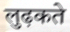
लुढ़कते